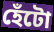
হেঁটো